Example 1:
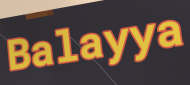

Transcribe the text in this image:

Balayya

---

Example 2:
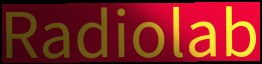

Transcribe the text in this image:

Radiolab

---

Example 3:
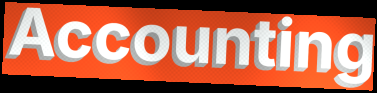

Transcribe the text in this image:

Accounting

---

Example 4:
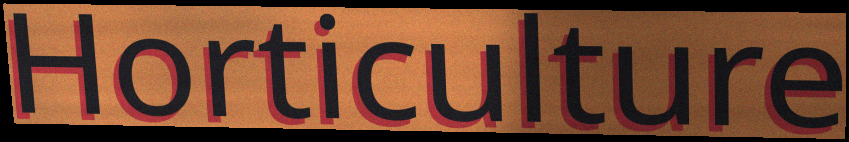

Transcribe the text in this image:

Horticulture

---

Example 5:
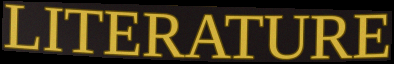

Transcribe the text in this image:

LITERATURE